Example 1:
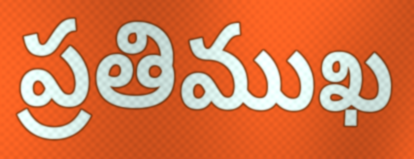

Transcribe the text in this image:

ప్రతిముఖ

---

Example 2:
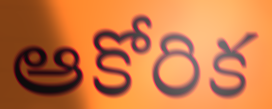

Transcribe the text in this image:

ఆకోరిక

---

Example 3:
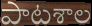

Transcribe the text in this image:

పాటశాల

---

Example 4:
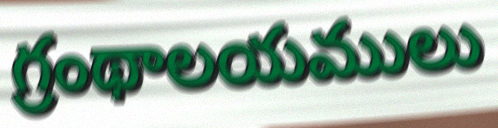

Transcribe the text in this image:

గ్రంథాలయములు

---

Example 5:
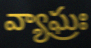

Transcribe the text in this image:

వ్యాఘ్రః